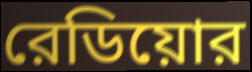
রেডিয়োর